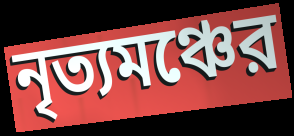
নৃত্যমঞ্চের